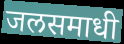
जलसमाधी